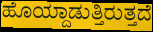
ಹೊಯ್ದಾಡುತ್ತಿರುತ್ತದೆ